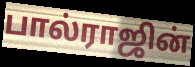
பால்ராஜின்